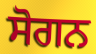
ਸੋਗਨ